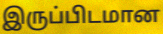
இருப்பிடமான